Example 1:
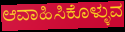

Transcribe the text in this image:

ಆವಾಹಿಸಿಕೊಳ್ಳುವ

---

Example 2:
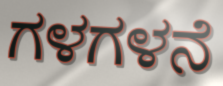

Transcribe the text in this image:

ಗಳಗಳನೆ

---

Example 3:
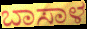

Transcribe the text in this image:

ಬಾಸಾಳ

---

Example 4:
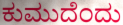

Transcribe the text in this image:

ಕುಮುದೆಂದು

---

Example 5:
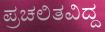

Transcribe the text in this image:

ಪ್ರಚಲಿತವಿದ್ದ